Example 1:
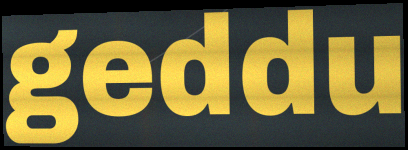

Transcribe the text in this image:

geddu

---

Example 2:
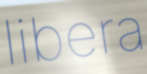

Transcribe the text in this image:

libera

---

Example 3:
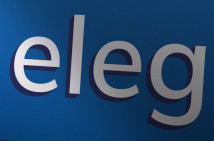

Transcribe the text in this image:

eleg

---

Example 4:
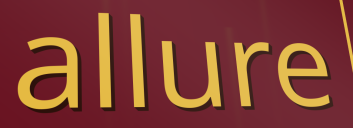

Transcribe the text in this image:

allure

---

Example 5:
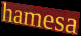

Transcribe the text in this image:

hamesa